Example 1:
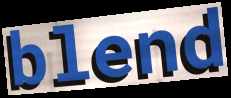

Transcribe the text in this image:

blend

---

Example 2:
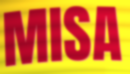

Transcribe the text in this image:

MISA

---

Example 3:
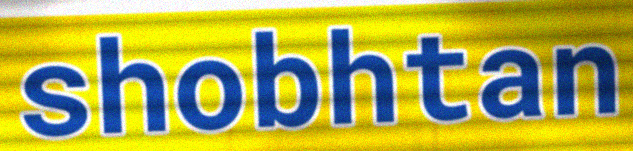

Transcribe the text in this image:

shobhtan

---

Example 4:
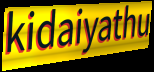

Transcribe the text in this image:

kidaiyathu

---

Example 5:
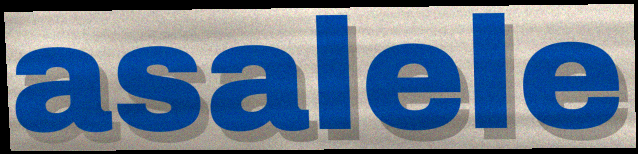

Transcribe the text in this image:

asalele